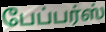
பேப்பர்ஸ்